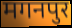
मगनपुर